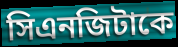
সিএনজিটাকে